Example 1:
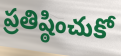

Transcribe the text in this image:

ప్రతిష్ఠించుకో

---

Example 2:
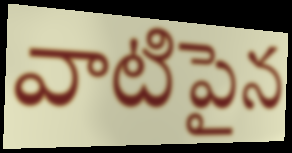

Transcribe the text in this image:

వాటిపైన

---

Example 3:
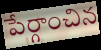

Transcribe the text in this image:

పేర్గాంచిన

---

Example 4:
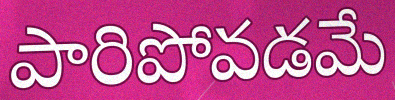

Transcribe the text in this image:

పారిపోవడమే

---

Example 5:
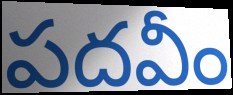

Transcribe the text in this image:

పదవీం